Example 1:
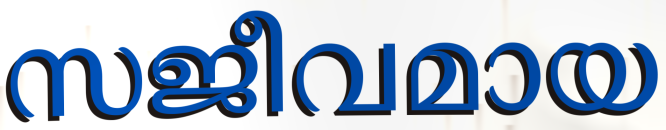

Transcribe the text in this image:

സജീവമായ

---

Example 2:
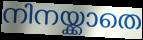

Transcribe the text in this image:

നിനയ്ക്കാതെ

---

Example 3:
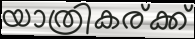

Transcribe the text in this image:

യാത്രികര്ക്ക്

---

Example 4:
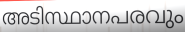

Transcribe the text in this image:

അടിസ്ഥാനപരവും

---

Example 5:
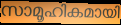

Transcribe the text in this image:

സാമൂഹികമായി